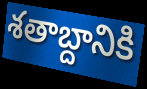
శతాబ్దానికి